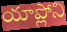
యాప్లోని